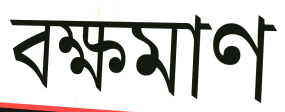
বক্ষমাণ